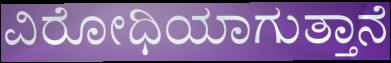
ವಿರೋಧಿಯಾಗುತ್ತಾನೆ